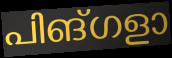
പിങ്ഗളാ